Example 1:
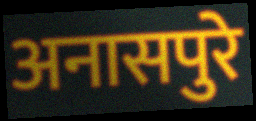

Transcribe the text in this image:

अनासपुरे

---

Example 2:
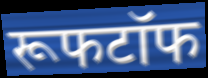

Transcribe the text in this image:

रूफटॉफ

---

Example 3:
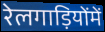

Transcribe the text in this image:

रेलगाड़ियोंमें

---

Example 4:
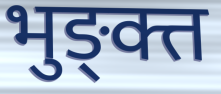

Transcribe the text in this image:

भुङ्क्त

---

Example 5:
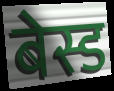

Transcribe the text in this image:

बेस्ड